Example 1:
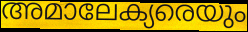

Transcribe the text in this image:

അമാലേക്യരെയും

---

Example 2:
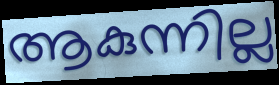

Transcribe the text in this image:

ആകുന്നില്ല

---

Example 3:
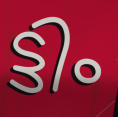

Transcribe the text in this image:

ട്ടിം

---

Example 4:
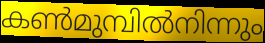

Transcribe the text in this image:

കൺമുമ്പിൽനിന്നും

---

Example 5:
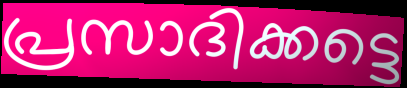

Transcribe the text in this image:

പ്രസാദിക്കട്ടെ